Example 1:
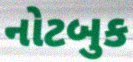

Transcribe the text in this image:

નોટબુક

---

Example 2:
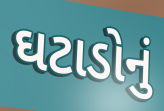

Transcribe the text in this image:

ઘટાડોનું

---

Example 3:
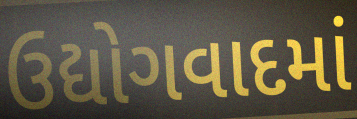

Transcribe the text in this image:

ઉદ્યોગવાદમાં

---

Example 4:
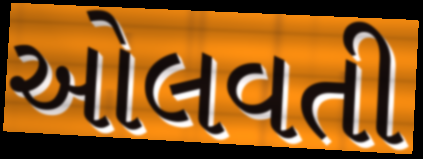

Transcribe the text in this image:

ઓલવતી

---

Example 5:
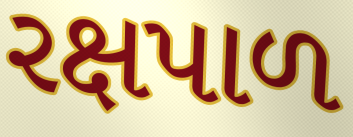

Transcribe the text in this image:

રક્ષપાળ